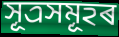
সূত্ৰসমূহৰ